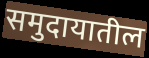
समुदायातील